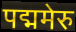
पद्ममेरु